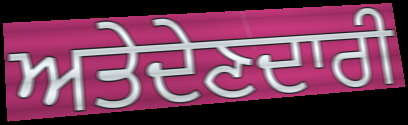
ਅਤੇਦੇਣਦਾਰੀ